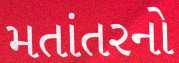
મતાંતરનો